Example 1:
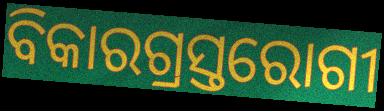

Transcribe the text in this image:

ବିକାରଗ୍ରସ୍ତରୋଗୀ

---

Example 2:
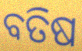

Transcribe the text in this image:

ବତିଷ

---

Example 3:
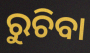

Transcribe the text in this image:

ରୁଚିବା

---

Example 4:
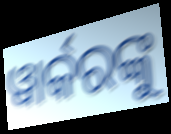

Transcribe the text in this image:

ୱାର୍କରଙ୍କୁ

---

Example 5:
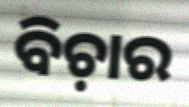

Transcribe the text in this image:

ବିଚ଼ାର